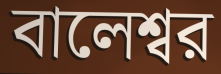
বালেশ্বর